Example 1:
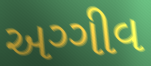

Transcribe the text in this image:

અગ્ગીવ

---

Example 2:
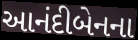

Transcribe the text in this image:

આનંદીબેનના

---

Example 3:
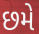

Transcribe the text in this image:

છમે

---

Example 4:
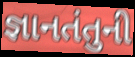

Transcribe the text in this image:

જ્ઞાનતંતુની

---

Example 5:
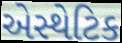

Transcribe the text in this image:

એસ્થેટિક